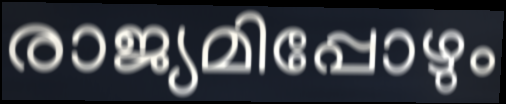
രാജ്യമിപ്പോഴും